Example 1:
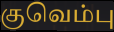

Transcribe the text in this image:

குவெம்பு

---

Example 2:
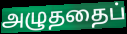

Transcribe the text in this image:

அழுததைப்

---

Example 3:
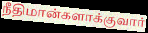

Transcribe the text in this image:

நீதிமான்களாக்குவார்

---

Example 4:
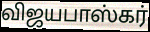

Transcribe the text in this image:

விஜயபாஸ்கர்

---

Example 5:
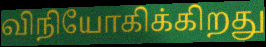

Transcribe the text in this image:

விநியோகிக்கிறது